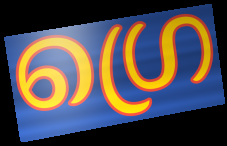
ഗ്രെ